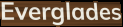
Everglades